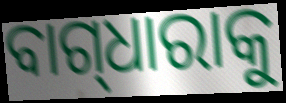
ବାଗ୍‌ଧାରାକୁ